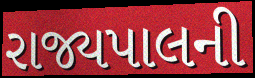
રાજ્યપાલની